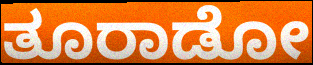
ತೂರಾಡೋ